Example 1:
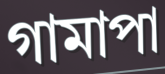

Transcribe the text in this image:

গামাপা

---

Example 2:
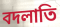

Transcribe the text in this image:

বদলাতি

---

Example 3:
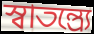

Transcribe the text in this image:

স্বাতন্ত্র্যে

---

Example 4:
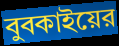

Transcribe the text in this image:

বুবকাইয়ের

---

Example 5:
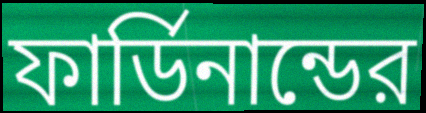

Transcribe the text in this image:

ফার্ডিনান্ডের